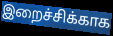
இறைச்சிக்காக